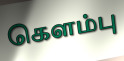
கௌம்பு